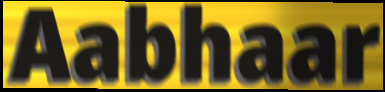
Aabhaar